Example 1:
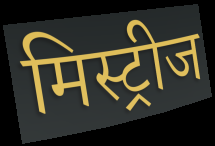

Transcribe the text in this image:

मिस्ट्रीज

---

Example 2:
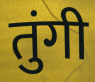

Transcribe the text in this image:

तुंगी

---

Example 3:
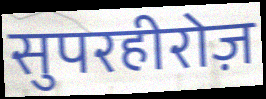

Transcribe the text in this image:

सुपरहीरोज़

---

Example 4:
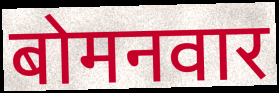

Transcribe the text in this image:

बोमनवार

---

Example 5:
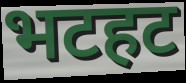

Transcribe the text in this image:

भटहट